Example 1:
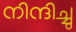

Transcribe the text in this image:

നിന്ദിച്ചു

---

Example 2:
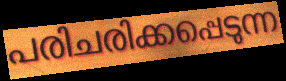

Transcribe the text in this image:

പരിചരിക്കപ്പെടുന്ന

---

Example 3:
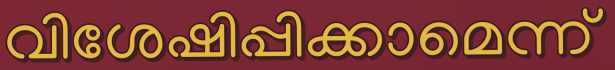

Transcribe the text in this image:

വിശേഷിപ്പിക്കാമെന്ന്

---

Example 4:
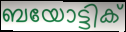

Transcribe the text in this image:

ബയോട്ടിക്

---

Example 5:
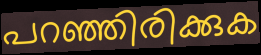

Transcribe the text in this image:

പറഞ്ഞിരിക്കുക